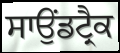
ਸਾਉਂਡਟ੍ਰੈਕ